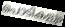
പൊടികളും